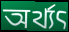
অর্থ্যৎ